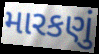
મારકણું